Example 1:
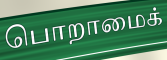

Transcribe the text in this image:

பொறாமைக்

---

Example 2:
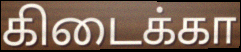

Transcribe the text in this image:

கிடைக்கா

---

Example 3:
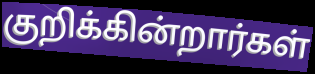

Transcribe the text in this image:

குறிக்கின்றார்கள்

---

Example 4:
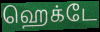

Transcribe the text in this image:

ஹெக்டே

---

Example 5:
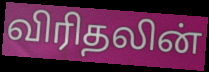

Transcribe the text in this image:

விரிதலின்